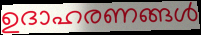
ഉദാഹരണങ്ങൾ